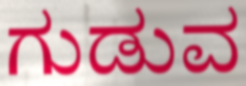
ಗುಡುವ